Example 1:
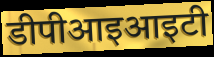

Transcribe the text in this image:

डीपीआइआइटी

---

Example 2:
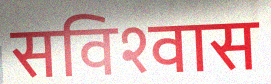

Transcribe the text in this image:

सविश्वास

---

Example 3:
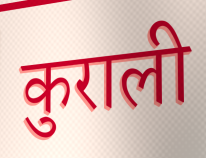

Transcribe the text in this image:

कुराली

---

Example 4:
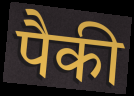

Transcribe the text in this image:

पैकी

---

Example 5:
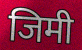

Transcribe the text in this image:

जिमी